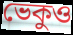
ভেকুও